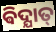
ଵିଦ୍ଯାତ୍